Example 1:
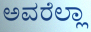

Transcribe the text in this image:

ಅವರೆಲ್ಲಾ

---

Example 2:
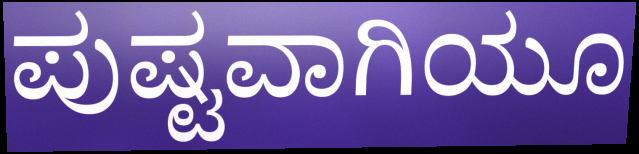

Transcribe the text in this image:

ಪುಷ್ಟವಾಗಿಯೂ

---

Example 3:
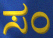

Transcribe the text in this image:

ಸಂ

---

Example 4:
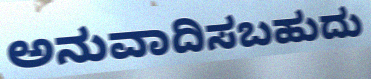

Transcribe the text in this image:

ಅನುವಾದಿಸಬಹುದು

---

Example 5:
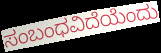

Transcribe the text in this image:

ಸಂಬಂಧವಿದೆಯೆಂದು